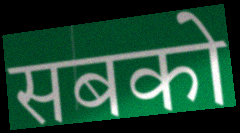
सबको